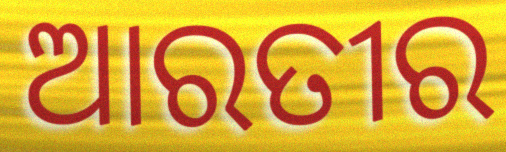
ଆରତୀର